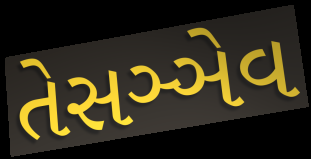
તેસઞ્ઞેવ